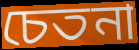
চেতনা